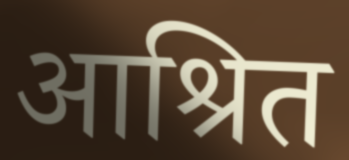
आश्रित